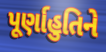
પૂર્ણાહુતિને